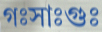
গঃসাঃগুঃ